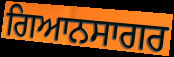
ਗਿਆਨਸਾਗਰ